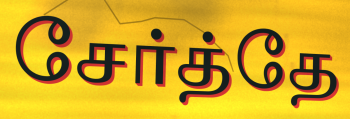
சேர்த்தே